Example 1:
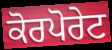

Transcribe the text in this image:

ਕੋਰਪੋਰੇਟ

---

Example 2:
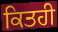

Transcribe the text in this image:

ਕਿਤਹੀ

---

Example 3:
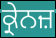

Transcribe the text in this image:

ਕ੍ਰੇਨਜ਼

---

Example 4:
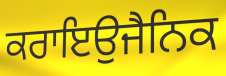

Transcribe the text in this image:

ਕਰਾਇਉਜੈਨਿਕ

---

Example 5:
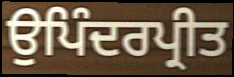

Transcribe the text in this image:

ਉਪਿੰਦਰਪ੍ਰੀਤ